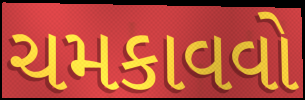
ચમકાવવો